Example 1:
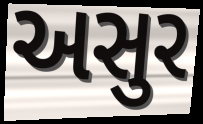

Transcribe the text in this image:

અસુર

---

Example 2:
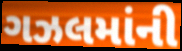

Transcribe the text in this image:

ગઝલમાંની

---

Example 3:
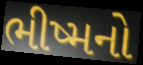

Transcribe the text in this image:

ભીષ્મનો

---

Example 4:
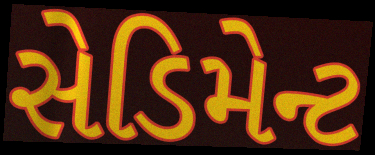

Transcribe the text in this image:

સેડિમેન્ટ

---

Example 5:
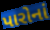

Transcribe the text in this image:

પારોનાં